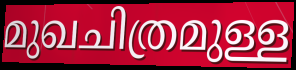
മുഖചിത്രമുള്ള